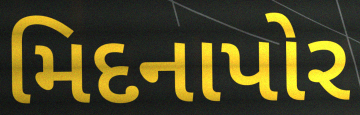
મિદનાપોર